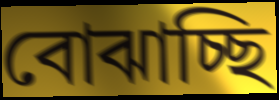
বোঝাচ্ছি